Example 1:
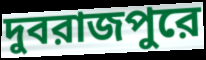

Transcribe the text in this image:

দুবরাজপুরে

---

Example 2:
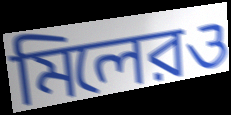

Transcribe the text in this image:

মিলেরও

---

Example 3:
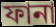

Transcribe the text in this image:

ফানা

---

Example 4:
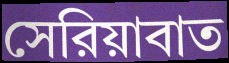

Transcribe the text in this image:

সেরিয়াবাত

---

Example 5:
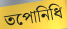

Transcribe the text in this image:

তপোনিধি